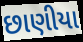
છાણીયા